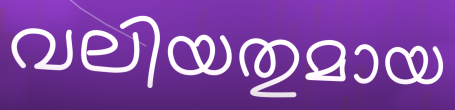
വലിയതുമായ